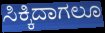
ಸಿಕ್ಕಿದಾಗಲೂ